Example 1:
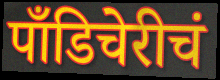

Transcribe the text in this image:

पाँडिचेरीचं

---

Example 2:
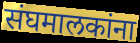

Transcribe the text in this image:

संघमालकांना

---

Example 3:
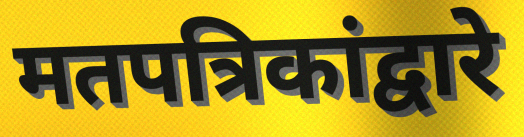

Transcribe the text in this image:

मतपत्रिकांद्वारे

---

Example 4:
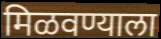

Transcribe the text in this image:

मिळवण्याला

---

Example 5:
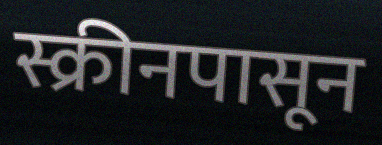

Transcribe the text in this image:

स्क्रीनपासून